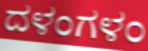
ದಳಂಗಳಂ